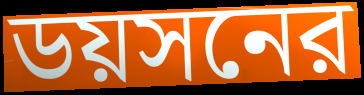
ডয়সনের